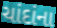
ચાંદાંના